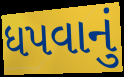
ધપવાનું